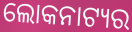
ଲୋକନାଟ୍ୟର